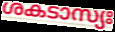
ശകടാസ്യഃ